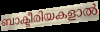
ബാക്ടീരിയകളാൽ